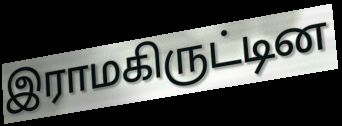
இராமகிருட்டின